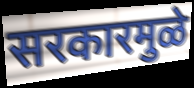
सरकारमुळे